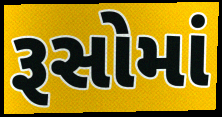
રૂસોમાં